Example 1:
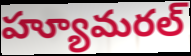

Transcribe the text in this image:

హ్యూమరల్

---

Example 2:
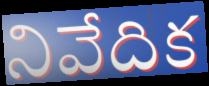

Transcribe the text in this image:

నివేదిక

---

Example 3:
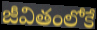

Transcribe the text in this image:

జీవితంలోకే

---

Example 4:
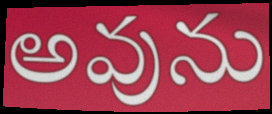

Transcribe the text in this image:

అవును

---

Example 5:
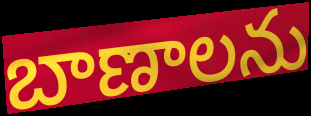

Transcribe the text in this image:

బాణాలను